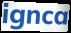
ignca